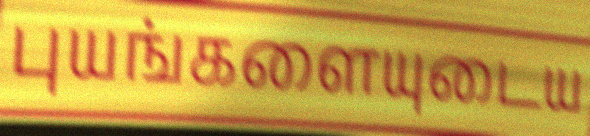
புயங்களையுடைய